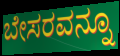
ಬೇಸರವನ್ನೂ